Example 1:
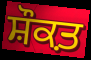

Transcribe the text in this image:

ਸ਼ੌਕ਼ਤ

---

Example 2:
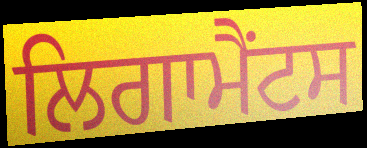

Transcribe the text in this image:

ਲਿਗਾਮੈਂਟਸ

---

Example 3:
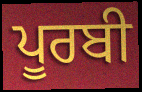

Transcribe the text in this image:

ਪੂਰਬੀ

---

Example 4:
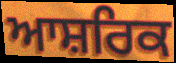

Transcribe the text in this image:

ਆਸ਼ਰਿਕ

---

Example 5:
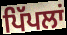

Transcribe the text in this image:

ਪਿੱਪਲਾਂ